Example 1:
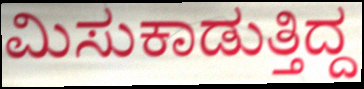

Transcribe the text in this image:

ಮಿಸುಕಾಡುತ್ತಿದ್ದ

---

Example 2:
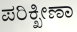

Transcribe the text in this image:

ಪರಿಕ್ಖೀಣಾ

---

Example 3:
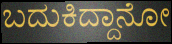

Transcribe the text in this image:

ಬದುಕಿದ್ದಾನೋ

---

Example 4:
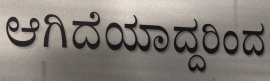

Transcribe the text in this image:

ಆಗಿದೆಯಾದ್ದರಿಂದ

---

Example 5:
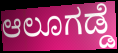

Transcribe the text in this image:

ಆಲೂಗಡ್ಡೆ